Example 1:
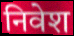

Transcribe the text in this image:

निवेश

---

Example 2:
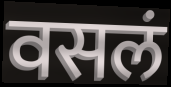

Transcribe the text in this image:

वसलं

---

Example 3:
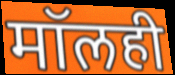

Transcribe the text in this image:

मॉलही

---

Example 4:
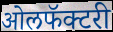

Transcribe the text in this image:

ओलफॅक्टरी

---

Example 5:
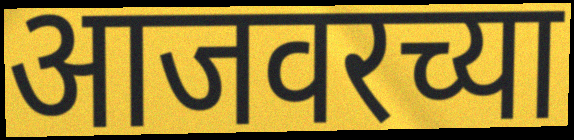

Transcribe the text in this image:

आजवरच्या